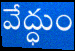
వేద్ధుం